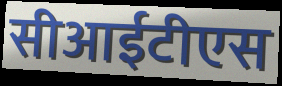
सीआईटीएस